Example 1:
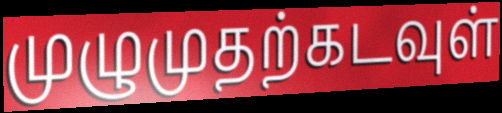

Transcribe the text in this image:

முழுமுதற்கடவுள்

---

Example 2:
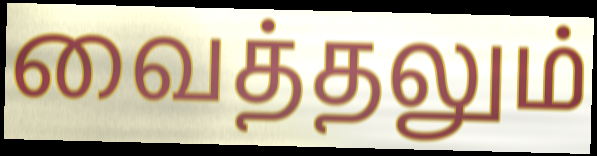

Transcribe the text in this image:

வைத்தலும்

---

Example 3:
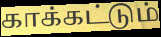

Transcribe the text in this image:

காக்கட்டும்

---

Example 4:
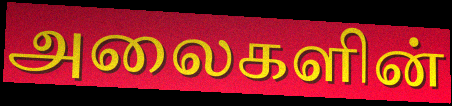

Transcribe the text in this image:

அலைகளின்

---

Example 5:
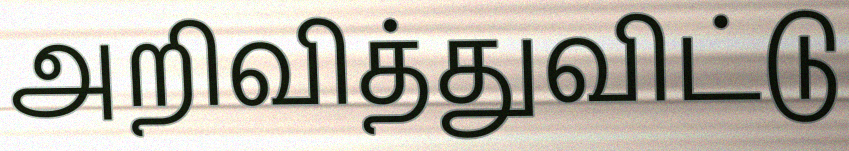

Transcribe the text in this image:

அறிவித்துவிட்டு